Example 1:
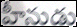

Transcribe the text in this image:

హీనుడు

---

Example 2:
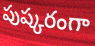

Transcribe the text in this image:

పుష్కరంగా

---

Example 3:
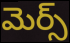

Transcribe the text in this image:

మెర్స్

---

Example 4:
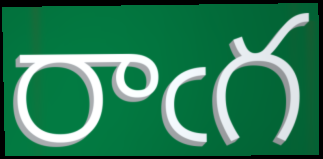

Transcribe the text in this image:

రాఁగ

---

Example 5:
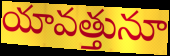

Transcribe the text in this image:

యావత్తునూ